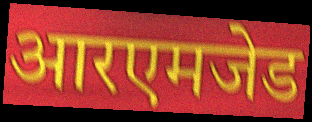
आरएमजेड